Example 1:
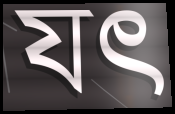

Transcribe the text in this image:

যৎ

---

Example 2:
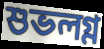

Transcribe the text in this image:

শুভলগ্ন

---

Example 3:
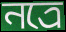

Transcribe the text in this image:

নত্রে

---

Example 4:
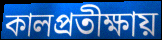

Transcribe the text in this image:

কালপ্রতীক্ষায়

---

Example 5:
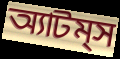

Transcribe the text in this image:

অ্যাটম্‌স